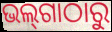
ଭଲ୍‌ଗାଠାରୁ